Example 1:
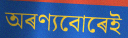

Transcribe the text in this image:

অৰণ্যবোৰেই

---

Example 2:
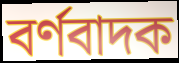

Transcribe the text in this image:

বৰ্ণবাদক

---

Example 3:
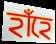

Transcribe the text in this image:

হাঁহে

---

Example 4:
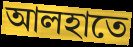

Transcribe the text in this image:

আলহাতে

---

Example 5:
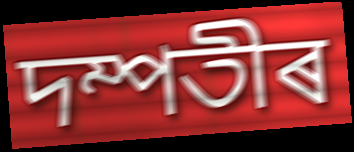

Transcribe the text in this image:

দম্পতীৰ